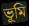
ভূমি